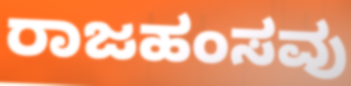
ರಾಜಹಂಸವು